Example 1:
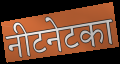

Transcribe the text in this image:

नीटनेटका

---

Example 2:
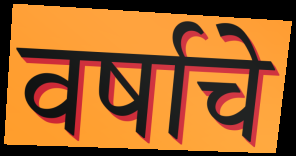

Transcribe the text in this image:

वर्षाचे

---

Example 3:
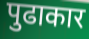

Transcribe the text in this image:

पुढाकार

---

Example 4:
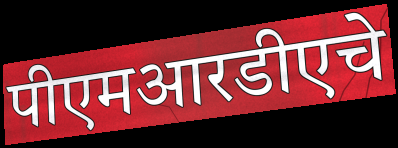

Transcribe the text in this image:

पीएमआरडीएचे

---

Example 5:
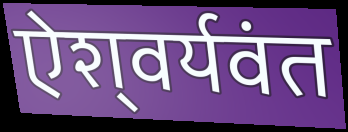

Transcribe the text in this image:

ऐश्वर्यवंत